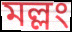
মল্লং